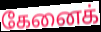
கேனைக்